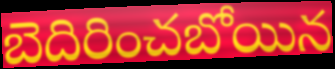
బెదిరించబోయిన